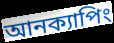
আনক্যাপিং